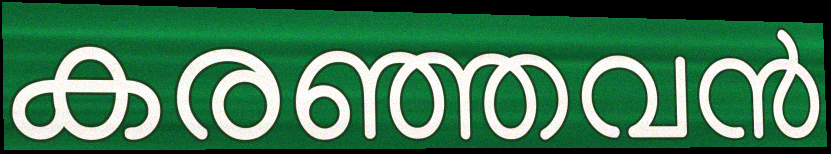
കരഞ്ഞവൻ